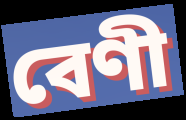
বেণী